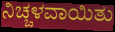
ನಿಚ್ಚಳವಾಯಿತು